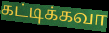
கட்டிக்கவா